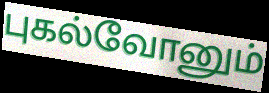
புகல்வோனும்